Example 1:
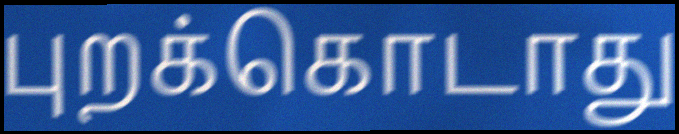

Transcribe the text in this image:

புறக்கொடாது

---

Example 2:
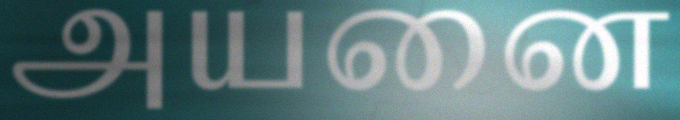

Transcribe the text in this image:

அயனை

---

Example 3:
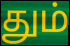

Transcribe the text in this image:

தும்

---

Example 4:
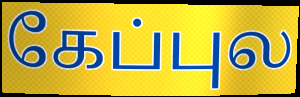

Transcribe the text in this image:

கேப்புல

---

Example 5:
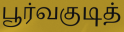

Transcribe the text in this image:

பூர்வகுடித்